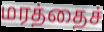
மரத்தைச்